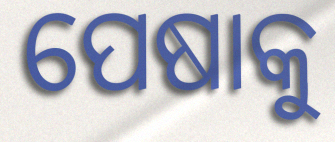
ପେଷାକୁ